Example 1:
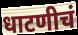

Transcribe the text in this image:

धाटणीचं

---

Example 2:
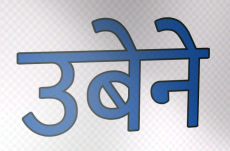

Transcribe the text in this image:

उबेने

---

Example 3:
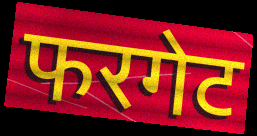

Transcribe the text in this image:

फरगेट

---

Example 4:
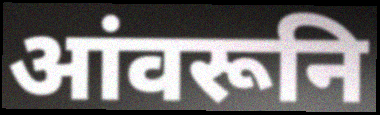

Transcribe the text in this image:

आंवरूनि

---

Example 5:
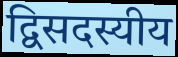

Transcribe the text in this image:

द्विसदस्यीय